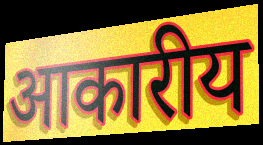
आकारीय